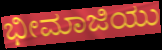
ಭೀಮಾಜಿಯು